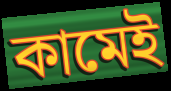
কামেই